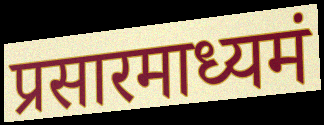
प्रसारमाध्यमं